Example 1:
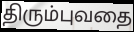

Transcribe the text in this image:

திரும்புவதை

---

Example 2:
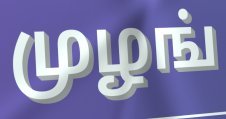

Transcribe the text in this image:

முழங்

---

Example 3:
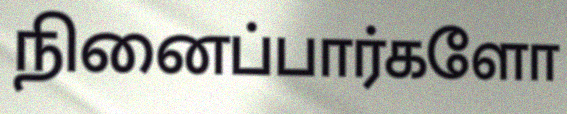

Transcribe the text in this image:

நினைப்பார்களோ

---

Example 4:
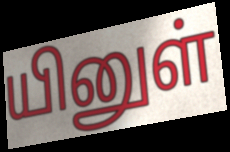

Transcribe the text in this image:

யினுள்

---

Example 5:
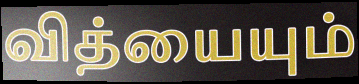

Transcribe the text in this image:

வித்யையும்